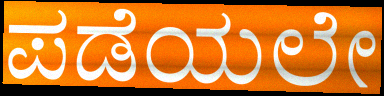
ಪಡೆಯಲೇ